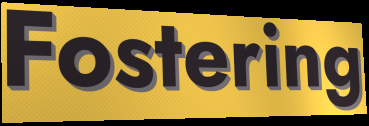
Fostering